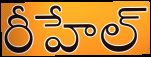
రీహేల్